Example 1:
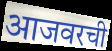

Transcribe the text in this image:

आजवरची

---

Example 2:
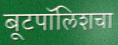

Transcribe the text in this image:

बूटपॉलिशचा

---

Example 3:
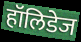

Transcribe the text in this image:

हॉलिडेज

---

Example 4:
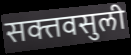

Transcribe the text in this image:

सक्तवसुली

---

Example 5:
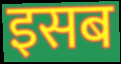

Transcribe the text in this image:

इसब